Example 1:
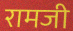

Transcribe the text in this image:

रामजी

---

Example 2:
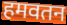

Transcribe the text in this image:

हमवतन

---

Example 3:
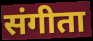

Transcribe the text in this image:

संगीता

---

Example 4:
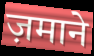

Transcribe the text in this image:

ज़माने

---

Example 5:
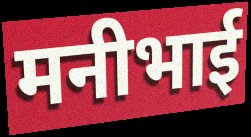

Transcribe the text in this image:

मनीभाई